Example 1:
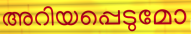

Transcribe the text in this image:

അറിയപ്പെടുമോ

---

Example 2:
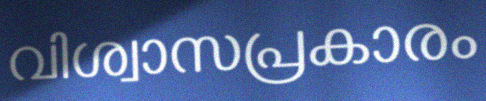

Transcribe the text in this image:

വിശ്വാസപ്രകാരം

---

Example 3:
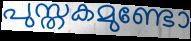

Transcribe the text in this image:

പുസ്തകമുണ്ടോ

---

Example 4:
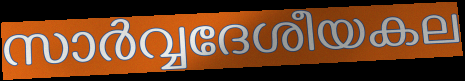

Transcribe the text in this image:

സാർവ്വദേശീയകല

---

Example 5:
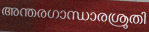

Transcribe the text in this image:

അന്തരഗാന്ധാരശ്രുതി